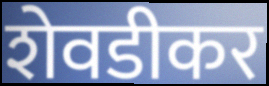
शेवडीकर